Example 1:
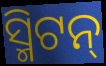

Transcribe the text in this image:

ସ୍ମିଟନ୍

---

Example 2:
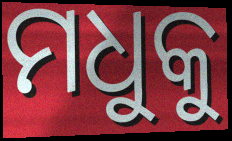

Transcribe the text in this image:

ମଧୁକୁ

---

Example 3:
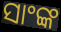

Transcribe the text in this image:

ସାଂଙ୍କ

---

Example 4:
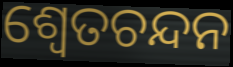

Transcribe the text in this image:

ଶ୍ୱେତଚନ୍ଦନ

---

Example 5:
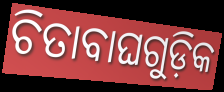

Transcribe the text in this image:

ଚିତାବାଘଗୁଡ଼ିକ